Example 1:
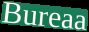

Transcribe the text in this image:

Bureaa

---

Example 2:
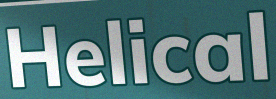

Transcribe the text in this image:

Helical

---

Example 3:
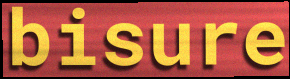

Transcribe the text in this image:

bisure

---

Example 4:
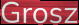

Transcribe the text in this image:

Grosz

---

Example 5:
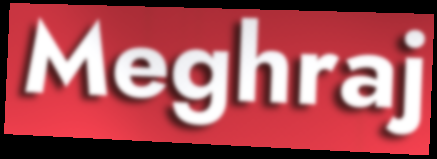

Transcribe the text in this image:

Meghraj